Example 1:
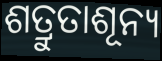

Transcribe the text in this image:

ଶତ୍ରୁତାଶୂନ୍ୟ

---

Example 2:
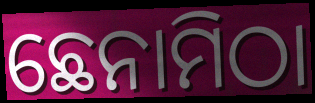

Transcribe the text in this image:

ଛେନାମିଠା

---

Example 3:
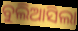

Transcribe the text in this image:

ବୁଲିଆସିଲା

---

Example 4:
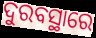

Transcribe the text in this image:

ଦୁରବସ୍ଥାରେ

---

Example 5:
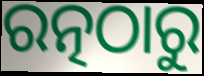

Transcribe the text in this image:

ରତ୍ନଠାରୁ